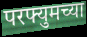
परफ्युमच्या